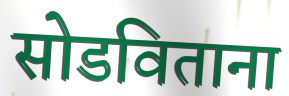
सोडविताना